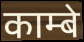
काम्बे